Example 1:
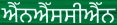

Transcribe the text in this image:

ਐੱਨਐੱਸਸੀਐੱਨ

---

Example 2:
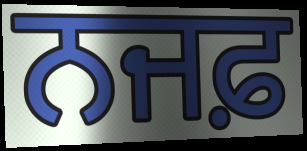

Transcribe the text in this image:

ਨਜਫ਼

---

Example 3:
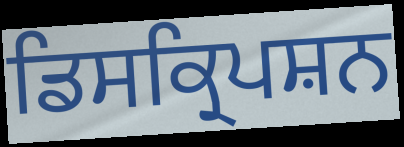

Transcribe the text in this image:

ਡਿਸਕ੍ਰਿਪਸ਼ਨ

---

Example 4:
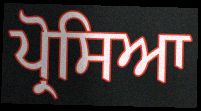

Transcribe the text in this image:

ਪ੍ਰੋਸਿਆ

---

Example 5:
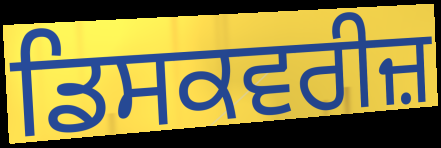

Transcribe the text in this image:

ਡਿਸਕਵਰੀਜ਼